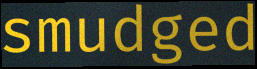
smudged